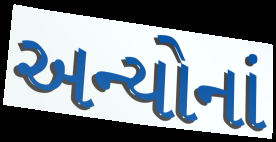
અન્યોનાં